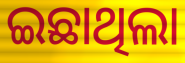
ଇଛାଥିଲା